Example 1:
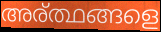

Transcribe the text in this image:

അര്ത്ഥങ്ങളെ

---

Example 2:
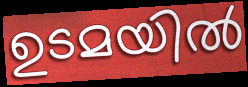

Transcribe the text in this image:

ഉടമയിൽ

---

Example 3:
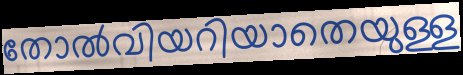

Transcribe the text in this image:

തോൽവിയറിയാതെയുള്ള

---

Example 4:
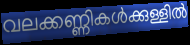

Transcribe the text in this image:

വലക്കണ്ണികൾക്കുള്ളിൽ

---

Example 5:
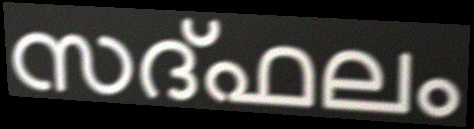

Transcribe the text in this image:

സദ്ഫലം